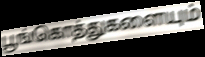
பூங்கொத்துகளையும்